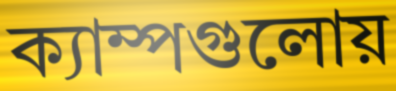
ক্যাম্পগুলোয়